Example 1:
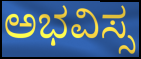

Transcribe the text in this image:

ಅಭವಿಸ್ಸ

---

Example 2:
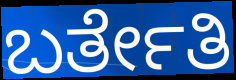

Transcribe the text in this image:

ಬರ್ತೇತಿ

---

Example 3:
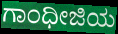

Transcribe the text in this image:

ಗಾಂಧೀಜಿಯ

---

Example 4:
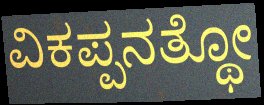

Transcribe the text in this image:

ವಿಕಪ್ಪನತ್ಥೋ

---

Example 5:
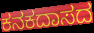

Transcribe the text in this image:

ಕನಕದಾಸದ